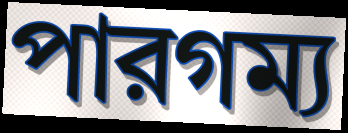
পারগম্য